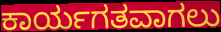
ಕಾರ್ಯಗತವಾಗಲು